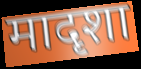
मादृशा